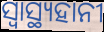
ସ୍ବାସ୍ଥ୍ୟହାନୀ